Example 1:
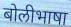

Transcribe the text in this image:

बोलीभाषा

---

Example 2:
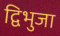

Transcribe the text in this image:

द्विभुजा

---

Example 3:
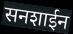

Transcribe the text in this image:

सनशाईन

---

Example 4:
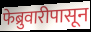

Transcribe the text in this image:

फेब्रुवारीपासून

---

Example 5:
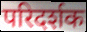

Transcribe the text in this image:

परिदर्शक